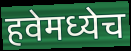
हवेमध्येच